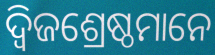
ଦ୍ୱିଜଶ୍ରେଷ୍ଠମାନେ